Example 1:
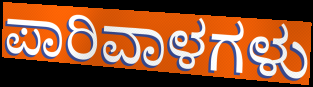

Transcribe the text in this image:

ಪಾರಿವಾಳಗಳು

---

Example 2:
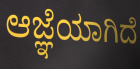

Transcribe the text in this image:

ಆಜ್ಞೆಯಾಗಿದೆ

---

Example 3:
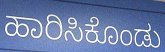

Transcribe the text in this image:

ಹಾರಿಸಿಕೊಂಡು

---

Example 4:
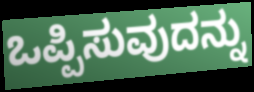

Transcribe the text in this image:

ಒಪ್ಪಿಸುವುದನ್ನು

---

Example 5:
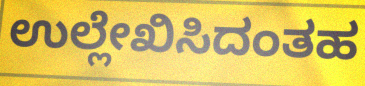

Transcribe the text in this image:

ಉಲ್ಲೇಖಿಸಿದಂತಹ